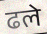
ढले